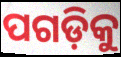
ପଗଡ଼ିକୁ